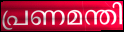
പ്രണമന്തി